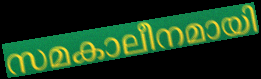
സമകാലീനമായി